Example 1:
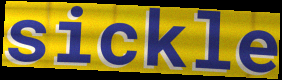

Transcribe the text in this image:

sickle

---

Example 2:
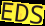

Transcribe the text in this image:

EDS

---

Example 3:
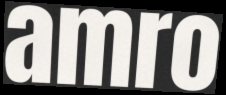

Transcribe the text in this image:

amro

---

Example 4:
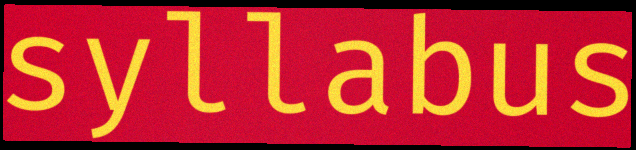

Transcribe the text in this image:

syllabus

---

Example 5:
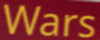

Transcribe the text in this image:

Wars